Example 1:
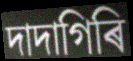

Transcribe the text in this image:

দাদাগিৰি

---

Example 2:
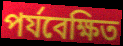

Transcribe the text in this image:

পৰ্যবেক্ষিত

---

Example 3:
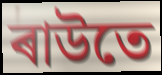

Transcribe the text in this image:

ৰাউতে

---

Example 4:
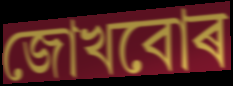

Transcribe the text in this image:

জোখবোৰ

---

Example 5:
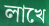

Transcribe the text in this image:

লাখে